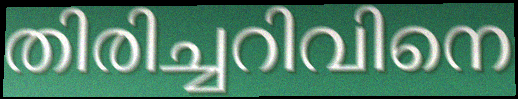
തിരിച്ചറിവിനെ